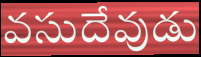
వసుదేవుడు